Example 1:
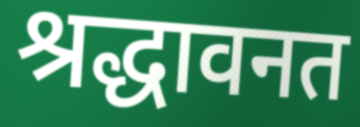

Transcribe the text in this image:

श्रद्धावनत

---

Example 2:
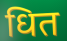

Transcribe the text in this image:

धित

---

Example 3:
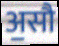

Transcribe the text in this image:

अ॒सौ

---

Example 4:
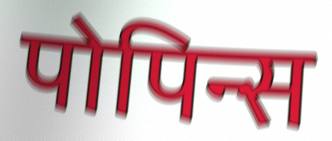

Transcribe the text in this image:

पोपिन्स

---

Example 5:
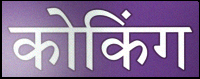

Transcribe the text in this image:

कोकिंग